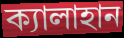
ক্যালাহান